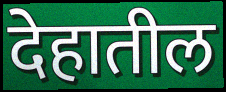
देहातील